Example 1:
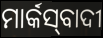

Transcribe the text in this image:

ମାର୍କସ୍‍ବାଦୀ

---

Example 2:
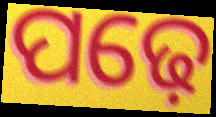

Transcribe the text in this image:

ପଢ଼େ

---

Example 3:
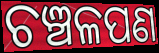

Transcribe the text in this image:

ଚଞ୍ଚଳପଣ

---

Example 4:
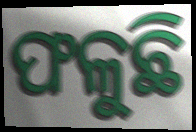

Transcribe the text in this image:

ଫଳୁଛି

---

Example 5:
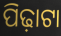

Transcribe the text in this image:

ପିଢ଼ାଟା